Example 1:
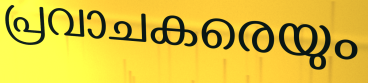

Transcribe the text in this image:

പ്രവാചകരെയും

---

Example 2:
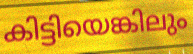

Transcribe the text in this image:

കിട്ടിയെങ്കിലും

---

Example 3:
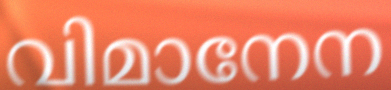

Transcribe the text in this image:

വിമാനേന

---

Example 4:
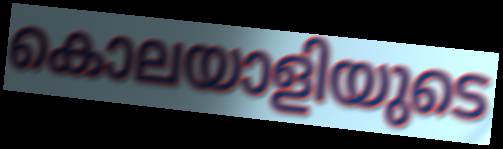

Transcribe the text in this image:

കൊലയാളിയുടെ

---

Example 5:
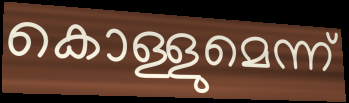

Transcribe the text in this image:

കൊള്ളുമെന്ന്